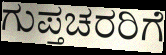
ಗುಪ್ತಚರರಿಗೆ